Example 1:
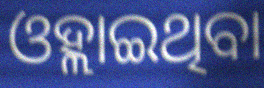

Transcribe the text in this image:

ଓହ୍ଲାଇଥିବା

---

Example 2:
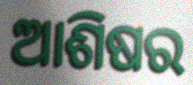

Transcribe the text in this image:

ଆଶିଷର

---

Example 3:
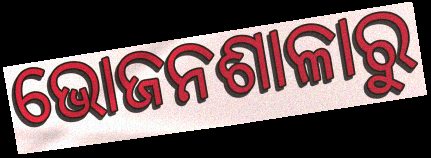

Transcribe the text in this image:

ଭୋଜନଶାଳାରୁ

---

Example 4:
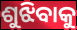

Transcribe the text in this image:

ଶୁଝିବାକୁ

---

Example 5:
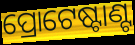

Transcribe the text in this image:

ପ୍ରୋଟେଷ୍ଟାଣ୍ଟ